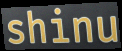
shinu